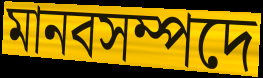
মানবসম্পদে